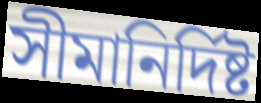
সীমানির্দিষ্ট